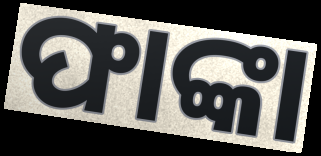
ଫାଙ୍କା